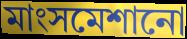
মাংসমেশানো